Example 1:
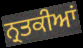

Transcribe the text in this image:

ਨ੍ਰਤਕੀਆਂ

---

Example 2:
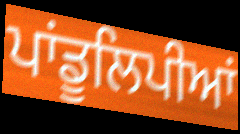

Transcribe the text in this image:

ਪਾਂਡੂਲਿਪੀਆਂ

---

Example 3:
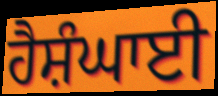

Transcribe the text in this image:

ਹੈਸ਼ੰਘਾਈ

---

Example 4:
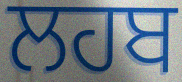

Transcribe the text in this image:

ਲਹਬ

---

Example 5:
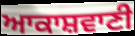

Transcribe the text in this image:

ਆਕਾਸ਼ਵਾਣੀ